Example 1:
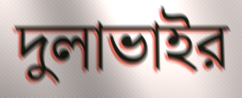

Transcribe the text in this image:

দুলাভাইর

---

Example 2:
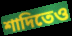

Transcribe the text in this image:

শাদিতেও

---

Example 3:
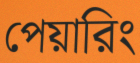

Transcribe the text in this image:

পেয়ারিং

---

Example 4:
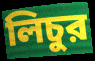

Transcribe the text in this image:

লিচুর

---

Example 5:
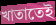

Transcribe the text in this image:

খাতাতেই